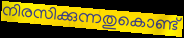
നിരസിക്കുന്നതുകൊണ്ട്